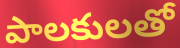
పాలకులతో